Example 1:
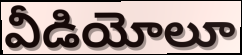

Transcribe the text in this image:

వీడియోలూ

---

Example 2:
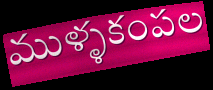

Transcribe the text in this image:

ముళ్ళకంపల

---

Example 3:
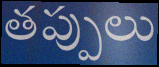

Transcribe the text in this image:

తప్పులు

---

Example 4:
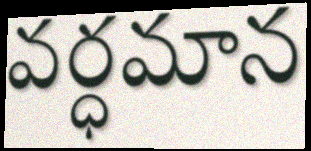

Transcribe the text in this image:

వర్ధమాన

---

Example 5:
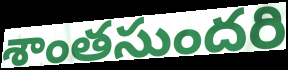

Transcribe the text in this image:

శాంతసుందరి